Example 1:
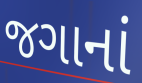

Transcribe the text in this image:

જગાનાં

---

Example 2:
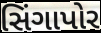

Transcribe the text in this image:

સિંગાપોર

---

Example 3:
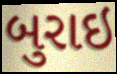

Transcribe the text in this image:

બુરાઇ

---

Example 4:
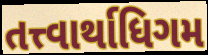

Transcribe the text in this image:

તત્ત્વાર્થાધિગમ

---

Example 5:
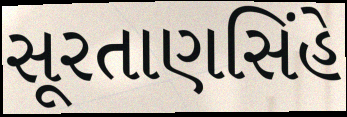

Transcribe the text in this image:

સૂરતાણસિંહે